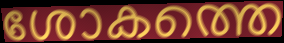
ശോകത്തെ